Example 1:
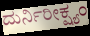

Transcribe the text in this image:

ದುರ್ನಿರೀಕ್ಷ್ಯಂ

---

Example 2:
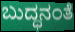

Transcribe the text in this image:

ಬುದ್ಧನಂತೆ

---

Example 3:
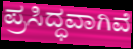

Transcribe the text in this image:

ಪ್ರಸಿದ್ಧವಾಗಿವೆ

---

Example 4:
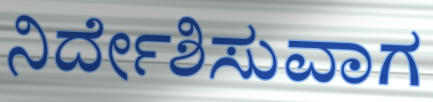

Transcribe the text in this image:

ನಿರ್ದೇಶಿಸುವಾಗ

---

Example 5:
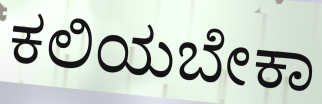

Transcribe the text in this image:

ಕಲಿಯಬೇಕಾ